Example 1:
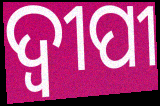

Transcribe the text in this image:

ଦ୍ୱୀପୀ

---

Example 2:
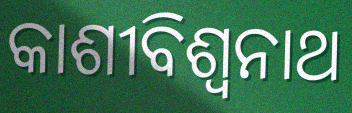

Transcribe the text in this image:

କାଶୀବିଶ୍ୱନାଥ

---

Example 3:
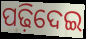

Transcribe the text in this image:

ପଢ଼ିଦେଇ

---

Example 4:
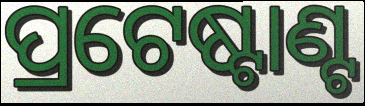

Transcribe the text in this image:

ପ୍ରଟେଷ୍ଟାଣ୍ଟ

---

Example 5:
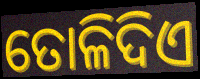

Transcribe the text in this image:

ତୋଳିଦିଏ